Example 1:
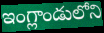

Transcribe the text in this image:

ఇంగ్లాండులోని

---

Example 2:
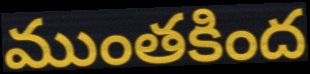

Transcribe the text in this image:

ముంతకింద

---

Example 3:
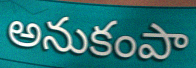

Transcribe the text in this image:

అనుకంపా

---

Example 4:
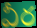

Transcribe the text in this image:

వీర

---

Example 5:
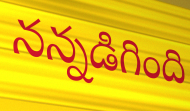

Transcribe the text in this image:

నన్నడిగింది